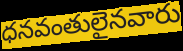
ధనవంతులైనవారు